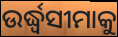
ଉର୍ଦ୍ଧ୍ୱସୀମାକୁ